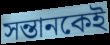
সন্তানকেই